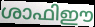
ശാഫിഈ